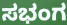
ಸಭಂಗ